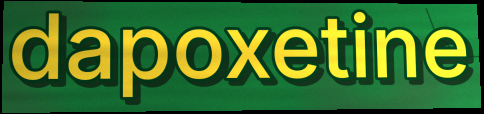
dapoxetine